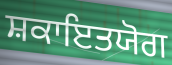
ਸ਼ਕਾਇਤਯੋਗ